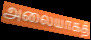
அலையாகத்